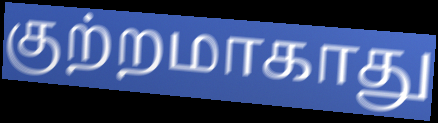
குற்றமாகாது